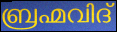
ബ്രഹ്മവിദ്